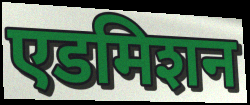
एडमिशन